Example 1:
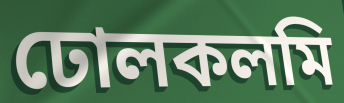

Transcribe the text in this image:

ঢোলকলমি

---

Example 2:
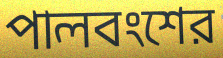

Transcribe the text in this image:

পালবংশের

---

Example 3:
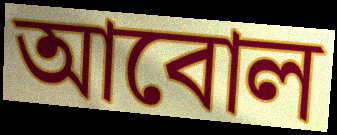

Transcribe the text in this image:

আবোল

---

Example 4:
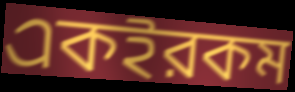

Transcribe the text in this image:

একইরকম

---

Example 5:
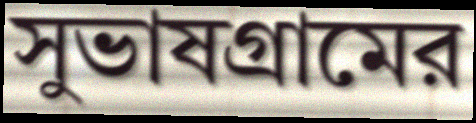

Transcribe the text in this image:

সুভাষগ্রামের